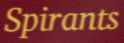
Spirants